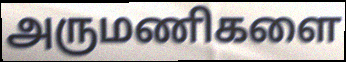
அருமணிகளை